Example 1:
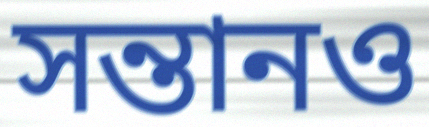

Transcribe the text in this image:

সন্তানও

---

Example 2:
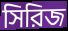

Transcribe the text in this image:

সিরিজ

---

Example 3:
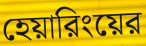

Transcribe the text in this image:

হেয়ারিংয়ের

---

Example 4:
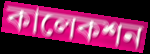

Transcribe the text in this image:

কালেকশন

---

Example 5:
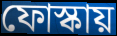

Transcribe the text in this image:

ফোস্কায়